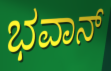
ಭವಾನ್